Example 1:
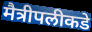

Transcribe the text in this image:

मैत्रीपलीकडे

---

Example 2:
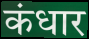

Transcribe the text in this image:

कंधार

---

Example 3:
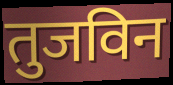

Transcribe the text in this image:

तुजविन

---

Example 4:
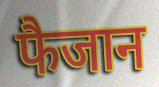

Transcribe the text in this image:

फैजान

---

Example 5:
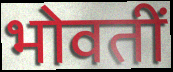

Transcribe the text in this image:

भोवतीं